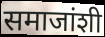
समाजांशी